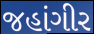
જહાંગીર